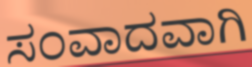
ಸಂವಾದವಾಗಿ